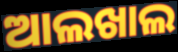
ଆଲଖାଲ